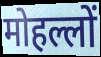
मोहल्लों